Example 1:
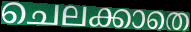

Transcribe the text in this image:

ചെലക്കാതെ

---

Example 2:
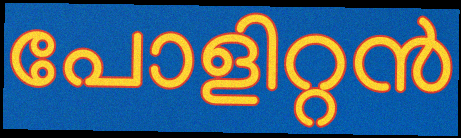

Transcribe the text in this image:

പോളിറ്റൻ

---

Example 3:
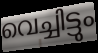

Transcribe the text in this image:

വെച്ചിട്ടും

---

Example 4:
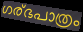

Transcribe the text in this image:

ഗര്ഭപാത്രം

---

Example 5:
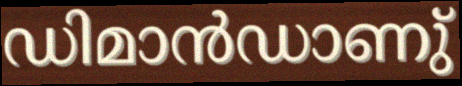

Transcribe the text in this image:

ഡിമാൻഡാണു്